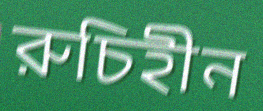
রুচিহীন